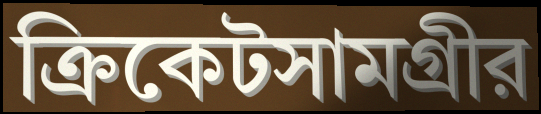
ক্রিকেটসামগ্রীর